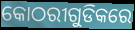
କୋଠରୀଗୁଡିକରେ